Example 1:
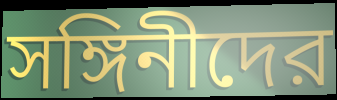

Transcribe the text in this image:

সঙ্গিনীদের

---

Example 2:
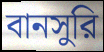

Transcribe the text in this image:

বানসুরি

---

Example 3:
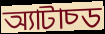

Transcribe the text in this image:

অ্যাটাচ্ড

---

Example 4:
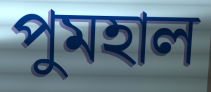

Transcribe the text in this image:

পুমহাল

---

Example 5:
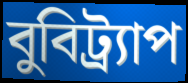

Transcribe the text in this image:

বুবিট্র্যাপ